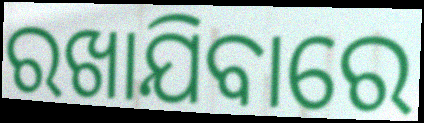
ରଖାଯିବାରେ